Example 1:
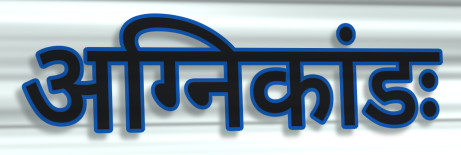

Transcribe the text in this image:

अग्निकांडः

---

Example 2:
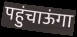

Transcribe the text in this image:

पहुंचाऊंगा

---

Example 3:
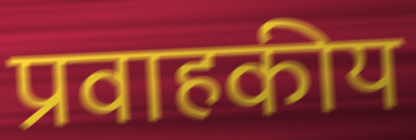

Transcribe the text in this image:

प्रवाहकीय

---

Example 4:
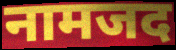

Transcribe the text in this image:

नामजद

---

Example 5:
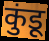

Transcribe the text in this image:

कुंडू